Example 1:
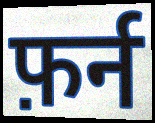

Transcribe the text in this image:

फ़र्न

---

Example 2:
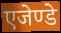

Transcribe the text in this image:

एजेण्डे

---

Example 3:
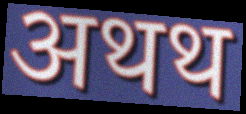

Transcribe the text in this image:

अथथ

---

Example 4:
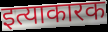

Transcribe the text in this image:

इत्याकारक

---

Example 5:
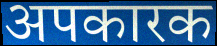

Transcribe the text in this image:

अपकारक